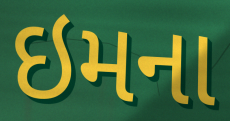
ઇમના